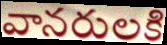
వానరులకి